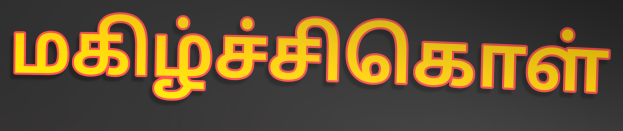
மகிழ்ச்சிகொள்